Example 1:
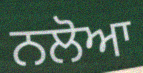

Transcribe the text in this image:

ਨਲੋਆ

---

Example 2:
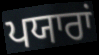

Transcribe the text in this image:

ਪਯਾਰਾਂ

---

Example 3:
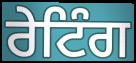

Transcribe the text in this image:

ਰੇਟਿੰਗ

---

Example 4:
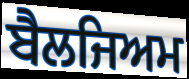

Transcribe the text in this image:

ਬੈਲਜਿਅਮ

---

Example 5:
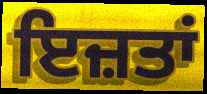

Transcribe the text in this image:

ਇਜ਼ਤਾਂ